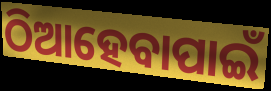
ଠିଆହେବାପାଇଁ